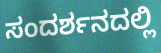
ಸಂದರ್ಶನದಲ್ಲಿ